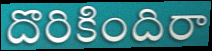
దొరికిందిరా